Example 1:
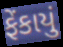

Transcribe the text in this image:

ફેંકાયું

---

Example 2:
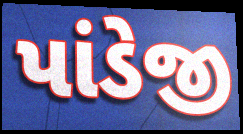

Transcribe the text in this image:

પાંડેજી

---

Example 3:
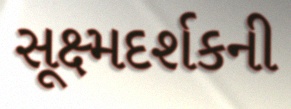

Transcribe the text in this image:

સૂક્ષ્મદર્શકની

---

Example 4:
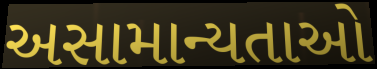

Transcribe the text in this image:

અસામાન્યતાઓ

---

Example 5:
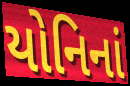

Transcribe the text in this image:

યોનિનાં